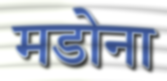
मडोना